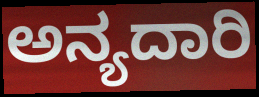
ಅನ್ಯದಾರಿ